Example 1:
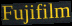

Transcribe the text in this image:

Fujifilm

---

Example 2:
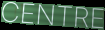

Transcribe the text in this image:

CENTRE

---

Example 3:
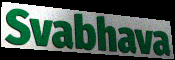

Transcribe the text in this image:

Svabhava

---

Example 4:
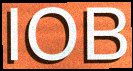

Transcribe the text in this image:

IOB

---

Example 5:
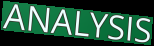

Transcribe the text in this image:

ANALYSIS